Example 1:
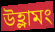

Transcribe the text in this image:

উহ্লামং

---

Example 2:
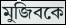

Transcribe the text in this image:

মুজিবকে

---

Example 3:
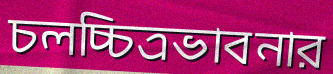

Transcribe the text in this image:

চলচ্চিত্রভাবনার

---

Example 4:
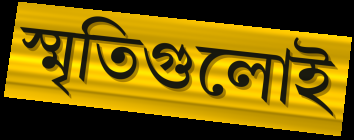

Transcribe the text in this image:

স্মৃতিগুলোই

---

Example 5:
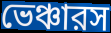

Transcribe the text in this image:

ভেঞ্চারস